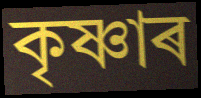
কৃষ্ণাৰ